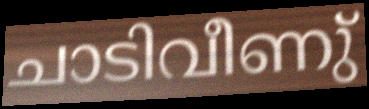
ചാടിവീണു്